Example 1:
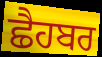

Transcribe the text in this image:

ਛੈਹਬਰ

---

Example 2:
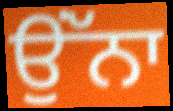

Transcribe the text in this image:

ਉਂੱਨਾ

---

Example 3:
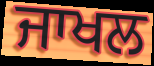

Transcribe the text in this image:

ਜਾਖਲ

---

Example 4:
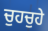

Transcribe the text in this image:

ਚੁਹਚੁਹੇ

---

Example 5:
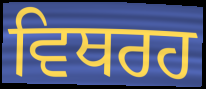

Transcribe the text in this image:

ਵਿਥਰਹ